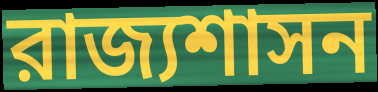
রাজ্যশাসন